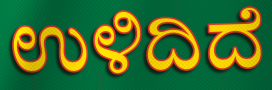
ಉಳಿದಿದೆ